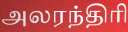
அலரந்திரி